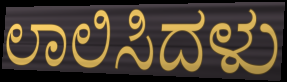
ಲಾಲಿಸಿದಳು